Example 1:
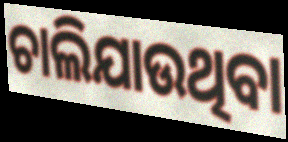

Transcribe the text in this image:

ଚାଲିଯାଉଥିବା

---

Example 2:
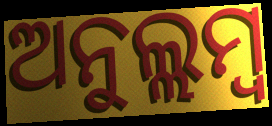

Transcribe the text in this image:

ଅନୁଲ୍ଲମ୍ବ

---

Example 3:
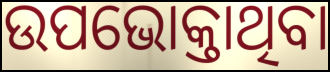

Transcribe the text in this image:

ଉପଭୋକ୍ତାଥିବା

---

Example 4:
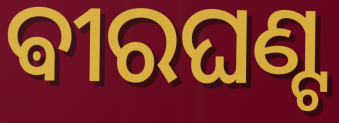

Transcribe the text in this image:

ଵୀରଘଣ୍ଟ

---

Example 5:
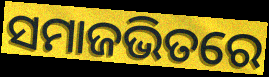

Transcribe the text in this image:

ସମାଜଭିତରେ